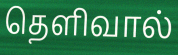
தெளிவால்